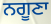
ਨਗੂਣਾ